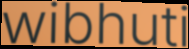
wibhuti